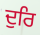
ਦੁਰਿ